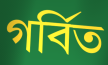
গর্বিত